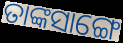
ତାଙ୍କସାଙ୍ଗେ